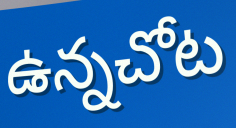
ఉన్నచోట